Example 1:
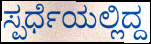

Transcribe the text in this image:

ಸ್ಪರ್ಧೆಯಲ್ಲಿದ್ದ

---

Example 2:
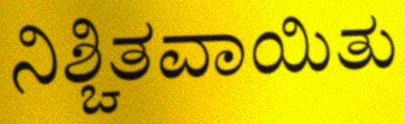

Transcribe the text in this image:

ನಿಶ್ಚಿತವಾಯಿತು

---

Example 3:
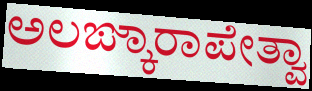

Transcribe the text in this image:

ಅಲಙ್ಕಾರಾಪೇತ್ವಾ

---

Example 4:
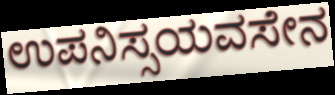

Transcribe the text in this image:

ಉಪನಿಸ್ಸಯವಸೇನ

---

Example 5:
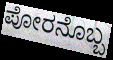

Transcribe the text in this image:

ಪೋರನೊಬ್ಬ